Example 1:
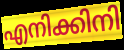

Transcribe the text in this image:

എനിക്കിനി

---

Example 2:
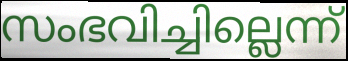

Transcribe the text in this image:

സംഭവിച്ചില്ലെന്ന്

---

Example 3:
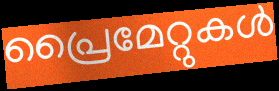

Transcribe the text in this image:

പ്രൈമേറ്റുകൾ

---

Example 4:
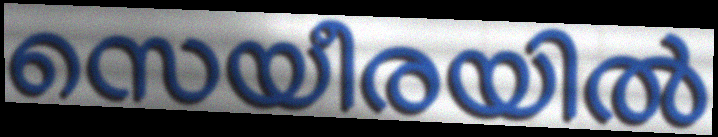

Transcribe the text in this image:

സെയീരയിൽ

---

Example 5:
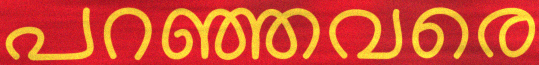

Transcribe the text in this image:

പറഞ്ഞവരെ